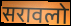
सरावलो